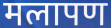
मलापण